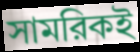
সামরিকই